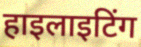
हाइलाइटिंग